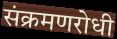
संक्रमणरोधी